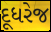
દૂધરેજ